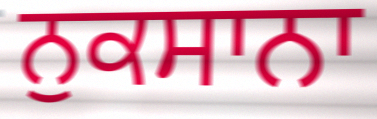
ਨੁਕਸਾਨਾ